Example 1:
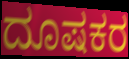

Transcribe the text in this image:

ದೂಷಕರ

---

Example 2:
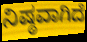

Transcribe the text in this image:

ನಿಷ್ಠವಾಗಿದೆ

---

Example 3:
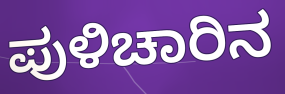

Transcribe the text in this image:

ಪುಳಿಚಾರಿನ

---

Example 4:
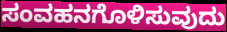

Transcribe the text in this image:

ಸಂವಹನಗೊಳಿಸುವುದು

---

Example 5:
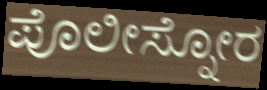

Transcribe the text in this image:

ಪೊಲೀಸ್ನೋರ